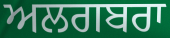
ਅਲਗਬਰਾ